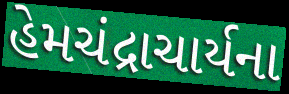
હેમચંદ્રાચાર્યના